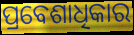
ପ୍ରବେଶାଧିକାର